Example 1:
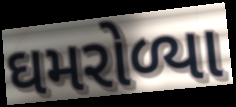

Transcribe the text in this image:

ઘમરોળ્યા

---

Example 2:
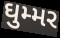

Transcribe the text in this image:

ઘુમ્મર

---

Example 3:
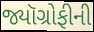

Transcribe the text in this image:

જ્યૉગ્રોફીની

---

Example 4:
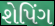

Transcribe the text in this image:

શેપિંગ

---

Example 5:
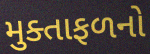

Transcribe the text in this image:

મુક્તાફળનો